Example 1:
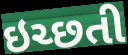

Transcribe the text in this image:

ઇચ્છતી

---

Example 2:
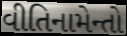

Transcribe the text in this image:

વીતિનામેન્તો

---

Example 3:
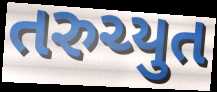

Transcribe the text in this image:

તરુચ્યુત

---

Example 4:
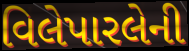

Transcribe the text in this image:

વિલેપારલેની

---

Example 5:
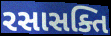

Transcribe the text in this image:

રસાસક્તિ